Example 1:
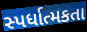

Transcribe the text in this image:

સ્પર્ધાત્મકતા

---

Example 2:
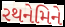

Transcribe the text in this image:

રથનેમિને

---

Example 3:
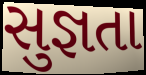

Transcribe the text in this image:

સુજ્ઞતા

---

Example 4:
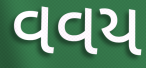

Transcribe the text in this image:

વવય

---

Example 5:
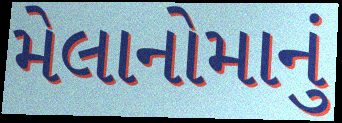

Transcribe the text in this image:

મેલાનોમાનું